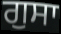
ਗੁਸਾ